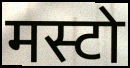
मस्टो